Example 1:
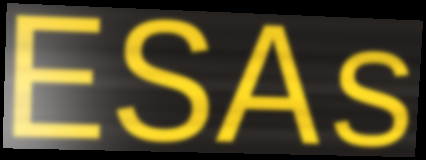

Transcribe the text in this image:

ESAs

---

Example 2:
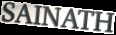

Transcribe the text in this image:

SAINATH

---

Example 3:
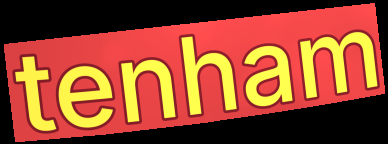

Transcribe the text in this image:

tenham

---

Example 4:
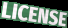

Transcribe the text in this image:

LICENSE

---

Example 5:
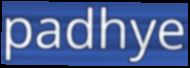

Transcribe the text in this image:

padhye